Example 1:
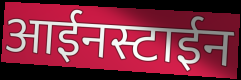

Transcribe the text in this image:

आईनस्टाईन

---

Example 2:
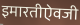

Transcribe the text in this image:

इमारतीऐवजी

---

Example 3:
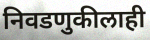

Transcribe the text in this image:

निवडणुकीलाही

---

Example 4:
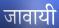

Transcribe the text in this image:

जावायी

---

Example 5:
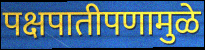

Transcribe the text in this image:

पक्षपातीपणामुळे